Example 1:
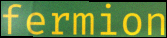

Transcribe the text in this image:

fermion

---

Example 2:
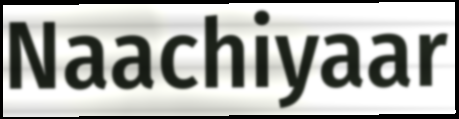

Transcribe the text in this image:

Naachiyaar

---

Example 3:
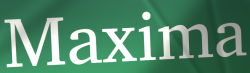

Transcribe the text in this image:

Maxima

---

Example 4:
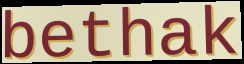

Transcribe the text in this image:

bethak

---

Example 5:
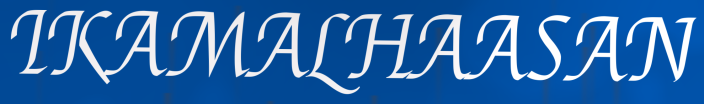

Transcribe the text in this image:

IKAMALHAASAN